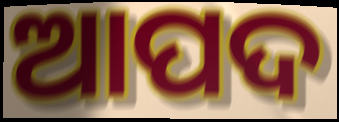
ଆପଦ